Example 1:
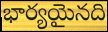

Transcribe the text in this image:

భార్యయైనది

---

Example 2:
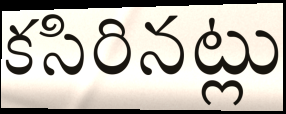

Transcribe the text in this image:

కసిరినట్లు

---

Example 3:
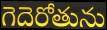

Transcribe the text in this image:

గెదెరోతును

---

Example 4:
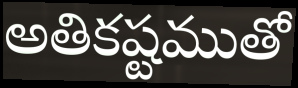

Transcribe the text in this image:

అతికష్టముతో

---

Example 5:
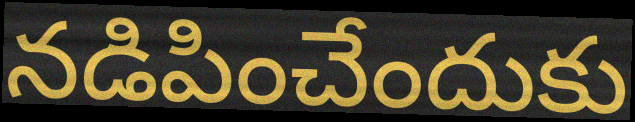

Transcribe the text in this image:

నడిపించేందుకు